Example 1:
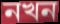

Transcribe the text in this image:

নখন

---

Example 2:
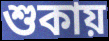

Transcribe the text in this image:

শুকায়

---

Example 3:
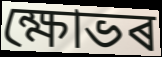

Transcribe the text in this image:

ক্ষোভৰ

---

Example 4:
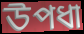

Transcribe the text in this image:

উপধা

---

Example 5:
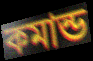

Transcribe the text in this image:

কমান্ড